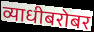
व्याधीबरोबर